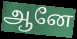
ஆனே